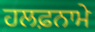
ਹਲਫ਼ਨਾਮੇ